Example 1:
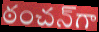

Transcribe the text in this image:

ఠంచన్‌గా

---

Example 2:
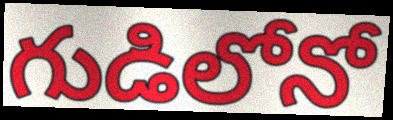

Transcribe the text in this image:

గుడిలోనో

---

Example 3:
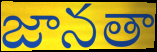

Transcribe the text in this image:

జానతా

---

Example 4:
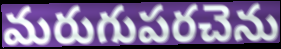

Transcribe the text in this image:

మరుగుపరచెను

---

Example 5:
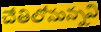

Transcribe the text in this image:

చేతిలోనున్నవి